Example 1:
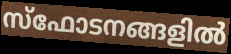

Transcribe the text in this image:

സ്ഫോടനങ്ങളിൽ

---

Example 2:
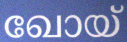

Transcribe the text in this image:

ഖോയ്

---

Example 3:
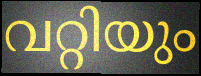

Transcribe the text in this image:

വറ്റിയും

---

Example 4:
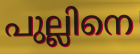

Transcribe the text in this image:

പുല്ലിനെ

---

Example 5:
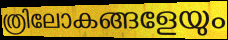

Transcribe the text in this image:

ത്രിലോകങ്ങളേയും